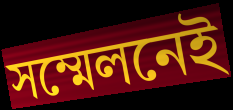
সম্মেলনেই